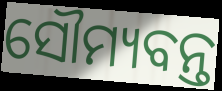
ସୌମ୍ୟବନ୍ତ